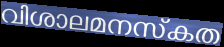
വിശാലമനസ്‌കത